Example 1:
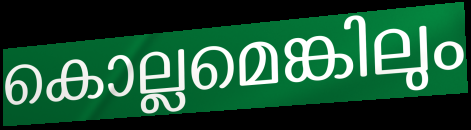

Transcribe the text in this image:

കൊല്ലമെങ്കിലും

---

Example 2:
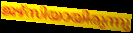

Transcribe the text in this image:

ജഴ്സിയായിരുന്നു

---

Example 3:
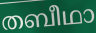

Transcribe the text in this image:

തബീഥാ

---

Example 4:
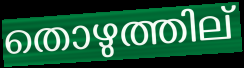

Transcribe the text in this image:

തൊഴുത്തില്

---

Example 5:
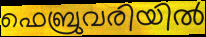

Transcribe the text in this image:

ഫെബ്രുവരിയിൽ